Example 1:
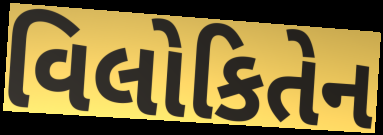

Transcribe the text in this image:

વિલોકિતેન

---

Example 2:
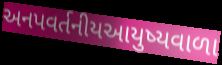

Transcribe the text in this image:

અનપવર્તનીયઆયુષ્યવાળા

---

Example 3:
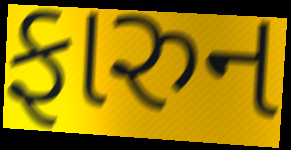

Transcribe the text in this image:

ફારુન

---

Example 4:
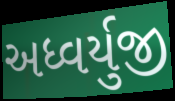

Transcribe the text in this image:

અધ્વર્યુજી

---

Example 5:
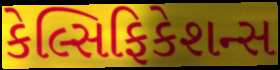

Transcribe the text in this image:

કેલ્સિફિકેશન્સ